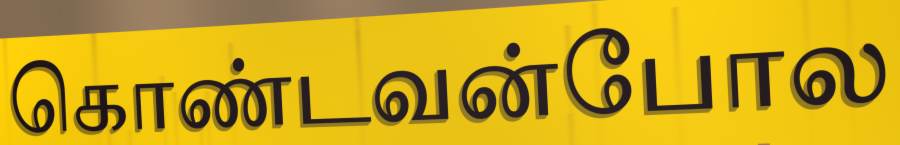
கொண்டவன்போல